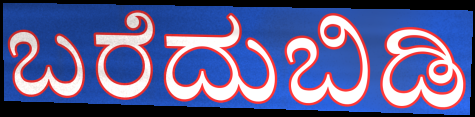
ಬರೆದುಬಿಡಿ